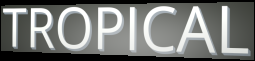
TROPICAL